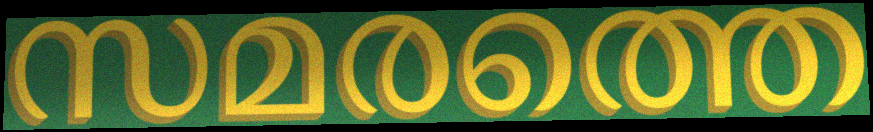
സമരത്തെ